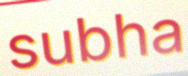
subha